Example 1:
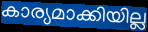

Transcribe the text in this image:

കാര്യമാക്കിയില്ല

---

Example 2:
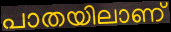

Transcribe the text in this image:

പാതയിലാണ്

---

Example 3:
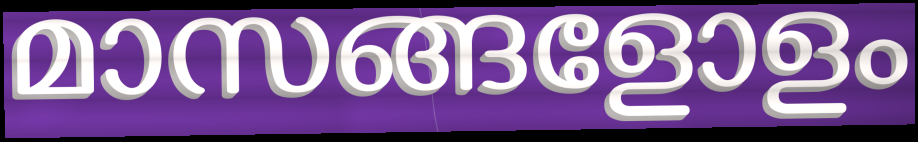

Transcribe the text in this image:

മാസങ്ങളോളം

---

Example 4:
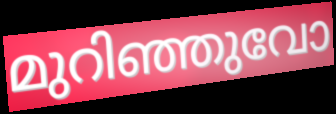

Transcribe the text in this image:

മുറിഞ്ഞുവോ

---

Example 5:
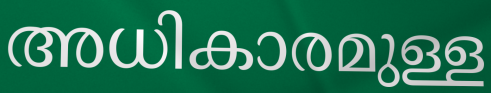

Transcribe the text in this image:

അധികാരമുള്ള